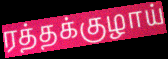
ரத்தக்குழாய்